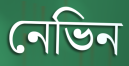
নেভিন